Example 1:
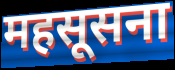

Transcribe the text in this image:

महसूसना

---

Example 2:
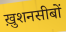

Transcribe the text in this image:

ख़ुशनसीबों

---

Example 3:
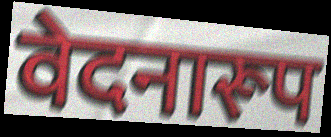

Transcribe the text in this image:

वेदनारूप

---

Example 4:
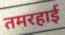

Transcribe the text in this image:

तमरहाई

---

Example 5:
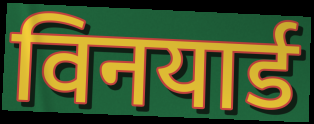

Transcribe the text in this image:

विनयार्ड